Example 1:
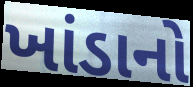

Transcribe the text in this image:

ખાંડાનો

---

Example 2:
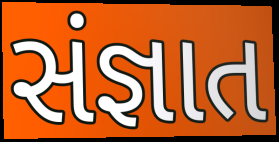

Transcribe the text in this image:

સંજ્ઞાત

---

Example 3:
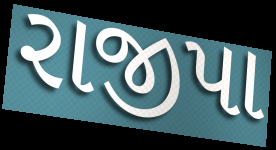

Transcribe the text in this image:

રાજીપા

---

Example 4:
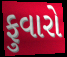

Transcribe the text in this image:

ફુવારો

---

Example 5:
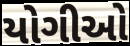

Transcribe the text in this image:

યોગીઓ